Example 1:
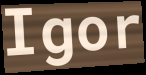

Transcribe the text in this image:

Igor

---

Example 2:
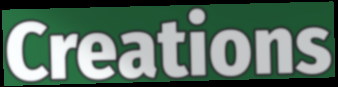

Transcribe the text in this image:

Creations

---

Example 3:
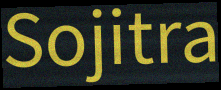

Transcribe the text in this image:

Sojitra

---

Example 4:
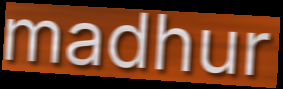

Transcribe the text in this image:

madhur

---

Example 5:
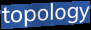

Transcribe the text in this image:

topology